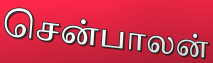
சென்பாலன்